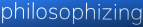
philosophizing